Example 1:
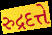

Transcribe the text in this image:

રુદ્રદત્તે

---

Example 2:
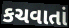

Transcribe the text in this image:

કચવાતાં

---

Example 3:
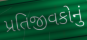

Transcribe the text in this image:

પ્રતિજીવકોનું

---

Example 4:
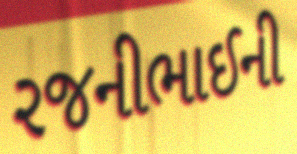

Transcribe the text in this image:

રજનીભાઈની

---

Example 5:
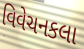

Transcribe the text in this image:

વિવેચનકલા